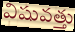
విషువత్తు